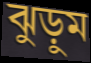
ঝুড়ুম